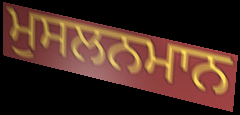
ਮੁਸਲਨਮਾਨ